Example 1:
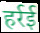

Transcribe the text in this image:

हर्रई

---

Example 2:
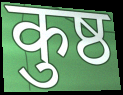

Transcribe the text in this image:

कुष्ठ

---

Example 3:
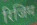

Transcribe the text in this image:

रिजिम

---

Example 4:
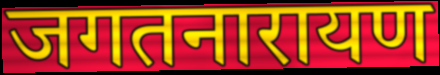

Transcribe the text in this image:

जगतनारायण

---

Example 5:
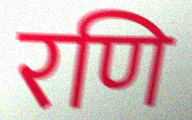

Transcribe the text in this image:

रणि